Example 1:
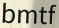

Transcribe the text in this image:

bmtf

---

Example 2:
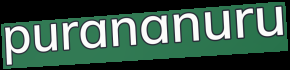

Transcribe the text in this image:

purananuru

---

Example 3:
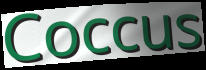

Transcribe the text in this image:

Coccus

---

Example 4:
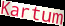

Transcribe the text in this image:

Kartum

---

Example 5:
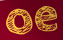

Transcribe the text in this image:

oe